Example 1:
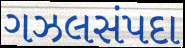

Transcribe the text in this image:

ગઝલસંપદા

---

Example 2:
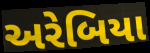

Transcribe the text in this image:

અરેબિયા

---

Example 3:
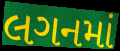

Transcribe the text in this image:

લગનમાં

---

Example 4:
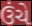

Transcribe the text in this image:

ઉંચે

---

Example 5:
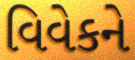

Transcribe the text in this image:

વિવેકને